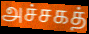
அச்சகத்